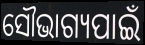
ସୌଭାଗ୍ୟପାଇଁ